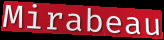
Mirabeau